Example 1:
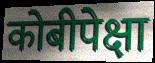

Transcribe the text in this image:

कोबीपेक्षा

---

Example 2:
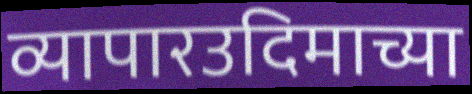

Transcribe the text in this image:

व्यापारउदिमाच्या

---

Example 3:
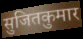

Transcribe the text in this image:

सुजितकुमार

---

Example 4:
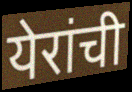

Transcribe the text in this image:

येरांची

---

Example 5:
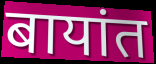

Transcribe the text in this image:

बायांत